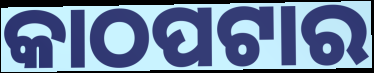
କାଠପଟାର